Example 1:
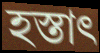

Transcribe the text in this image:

হস্তাৎ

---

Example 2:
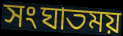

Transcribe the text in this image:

সংঘাতময়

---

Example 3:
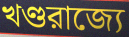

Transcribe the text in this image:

খণ্ডরাজ্যে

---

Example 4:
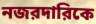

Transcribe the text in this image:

নজরদারিকে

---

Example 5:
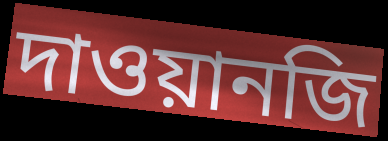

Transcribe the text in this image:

দাওয়ানজি